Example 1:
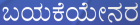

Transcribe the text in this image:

ಬಯಕೆಯೇನರ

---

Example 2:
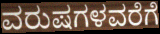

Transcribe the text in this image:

ವರುಷಗಳವರೆಗೆ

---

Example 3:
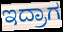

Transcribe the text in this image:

ಇದ್ರಾಗ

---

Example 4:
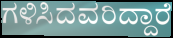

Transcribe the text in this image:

ಗಳಿಸಿದವರಿದ್ದಾರೆ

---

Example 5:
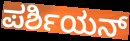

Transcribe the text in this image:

ಪರ್ಶಿಯನ್